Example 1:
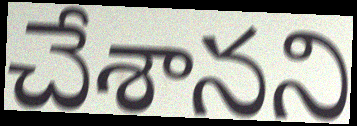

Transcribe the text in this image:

చేశానని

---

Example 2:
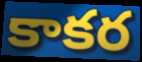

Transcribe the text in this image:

కాకర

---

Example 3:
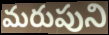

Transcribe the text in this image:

మరుపుని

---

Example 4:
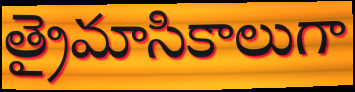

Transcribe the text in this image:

త్రైమాసికాలుగా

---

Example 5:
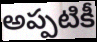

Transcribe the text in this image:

అప్పటికీ